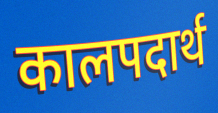
कालपदार्थ